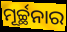
ମୂର୍ଚ୍ଛନାର